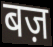
बज़